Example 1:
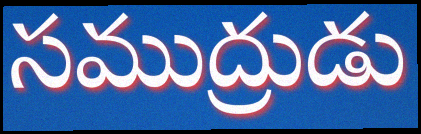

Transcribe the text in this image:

సముద్రుడు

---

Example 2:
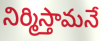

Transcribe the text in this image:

నిర్మిస్తామనే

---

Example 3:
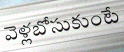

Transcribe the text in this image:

వెళ్లబోసుకుంటే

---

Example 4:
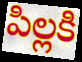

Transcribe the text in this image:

పిల్లకి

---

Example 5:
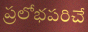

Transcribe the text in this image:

ప్రలోభపరిచే